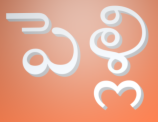
పెళ్లి